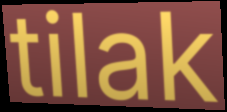
tilak